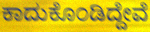
ಕಾದುಕೊಂಡಿದ್ದೇವೆ